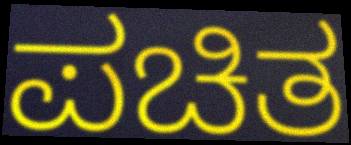
ಪಚಿತ